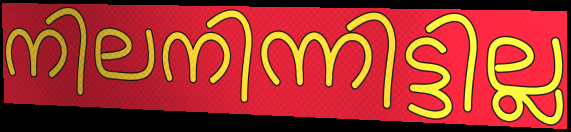
നിലനിന്നിട്ടില്ല